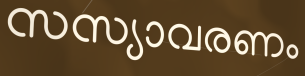
സസ്യാവരണം